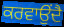
ਕਰਵਾਉਂਦੈ